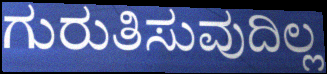
ಗುರುತಿಸುವುದಿಲ್ಲ